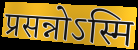
प्रसन्नोऽस्मि